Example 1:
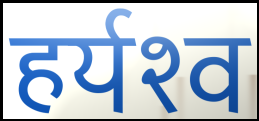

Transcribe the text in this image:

हर्यश्व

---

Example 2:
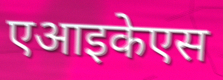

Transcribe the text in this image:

एआइकेएस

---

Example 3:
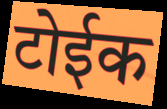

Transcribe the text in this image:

टोईक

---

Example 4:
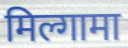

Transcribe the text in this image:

मिल्गामा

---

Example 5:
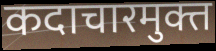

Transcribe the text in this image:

कदाचारमुक्त